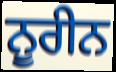
ਨੂਰੀਨ